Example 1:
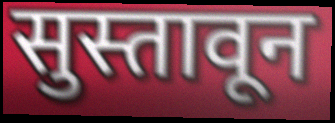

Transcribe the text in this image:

सुस्तावून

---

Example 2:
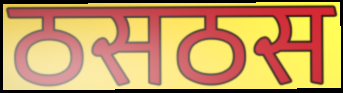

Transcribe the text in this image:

ठसठस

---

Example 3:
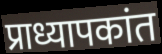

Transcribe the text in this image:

प्राध्यापकांत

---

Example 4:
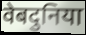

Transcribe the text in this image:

वेबदुनिया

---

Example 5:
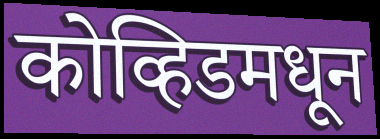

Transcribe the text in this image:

कोव्हिडमधून